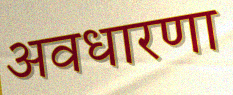
अवधारणा